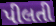
પીલતી